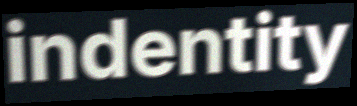
indentity